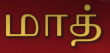
மாத்